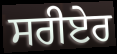
ਸਰੀਏਰ